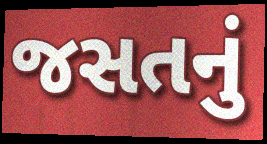
જસતનું